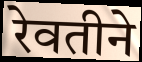
रेवतीने